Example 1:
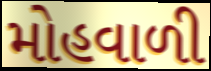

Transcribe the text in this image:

મોહવાળી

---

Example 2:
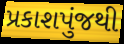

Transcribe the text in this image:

પ્રકાશપુંજથી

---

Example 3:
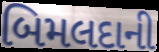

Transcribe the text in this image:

બિમલદાની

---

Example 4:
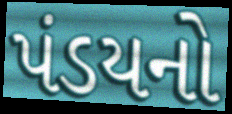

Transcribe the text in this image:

પંડયનો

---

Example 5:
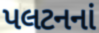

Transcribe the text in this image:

પલટનનાં